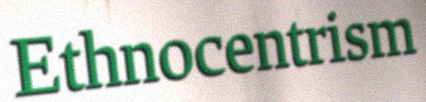
Ethnocentrism